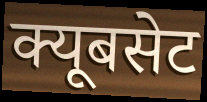
क्यूबसेट